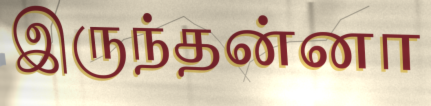
இருந்தன்னா